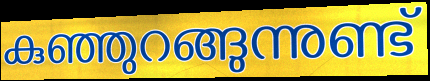
കുഞ്ഞുറങ്ങുന്നുണ്ട്